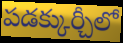
పడక్కుర్చీలో